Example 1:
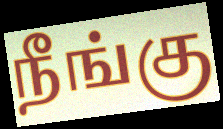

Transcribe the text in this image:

நீங்கு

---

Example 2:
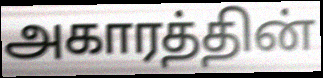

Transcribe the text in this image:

அகாரத்தின்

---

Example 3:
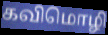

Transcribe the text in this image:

கவிமொழி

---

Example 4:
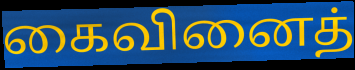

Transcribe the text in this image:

கைவினைத்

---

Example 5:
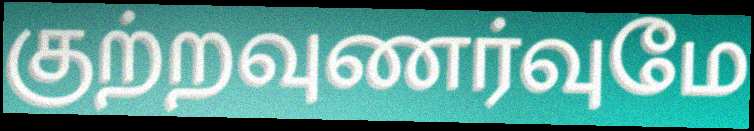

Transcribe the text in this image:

குற்றவுணர்வுமே